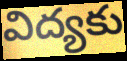
విద్యకు